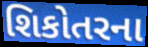
શિકોતરના